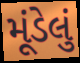
મૂંડેલું